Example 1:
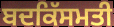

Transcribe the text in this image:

ਬਦਕਿੱਸਮਤੀ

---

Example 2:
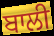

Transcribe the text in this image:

ਬਾਲੀ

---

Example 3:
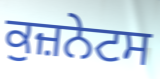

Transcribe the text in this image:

ਕੁਜ਼ਨੇਟਸ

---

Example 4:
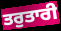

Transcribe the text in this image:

ਤਰੁਤਾਰੀ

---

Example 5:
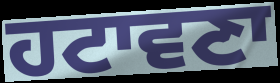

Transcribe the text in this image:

ਹਟਾਵਣਾ